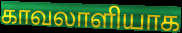
காவலாளியாக